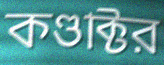
কণ্ডাক্টর